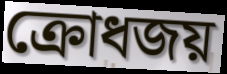
ক্রোধজয়